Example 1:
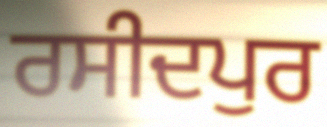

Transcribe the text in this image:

ਰਸੀਦਪੁਰ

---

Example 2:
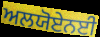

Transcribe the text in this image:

ਅਲਯੋਏਨਈ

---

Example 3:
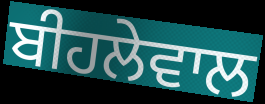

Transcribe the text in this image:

ਬੀਹਲੇਵਾਲ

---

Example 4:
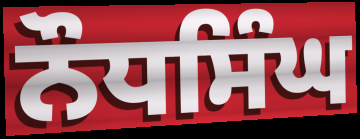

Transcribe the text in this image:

ਨੌਧਸਿੰਘ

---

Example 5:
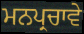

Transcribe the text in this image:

ਮਨਪ੍ਰਚਾਵੇ